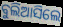
ବୁଲିଆସିଲେ